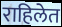
राहिलेत